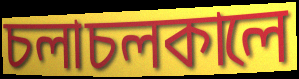
চলাচলকালে